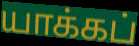
யாக்கப்